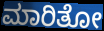
ಮಾರಿತೋ